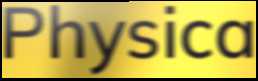
Physica